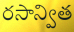
రసాన్విత